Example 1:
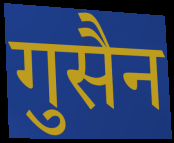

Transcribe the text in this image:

गुसैन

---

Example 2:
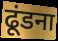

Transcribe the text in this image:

ढूंडना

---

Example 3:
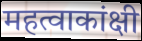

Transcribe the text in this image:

महत्‍वाकांक्षी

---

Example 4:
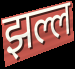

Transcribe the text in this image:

झल्ल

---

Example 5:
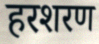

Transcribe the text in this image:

हरशरण